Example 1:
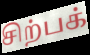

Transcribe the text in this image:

சிற்பக்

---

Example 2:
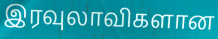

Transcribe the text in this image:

இரவுலாவிகளான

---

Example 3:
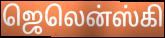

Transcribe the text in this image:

ஜெலென்ஸ்கி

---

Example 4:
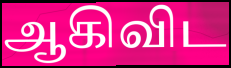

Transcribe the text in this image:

ஆகிவிட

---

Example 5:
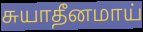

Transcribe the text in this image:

சுயாதீனமாய்